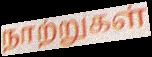
நாற்றுகள்